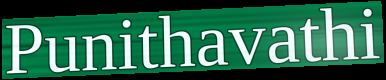
Punithavathi